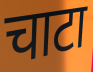
चाटा